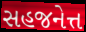
સહજનેત્ત